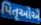
પિતૃઓએ